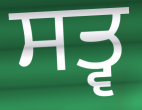
ਸਤ੍ਵ